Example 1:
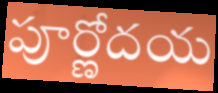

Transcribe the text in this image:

పూర్ణోదయ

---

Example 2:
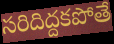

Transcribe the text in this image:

సరిదిద్దకపోతే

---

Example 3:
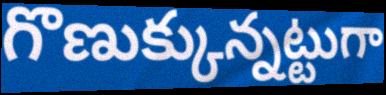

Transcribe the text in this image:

గొణుక్కున్నట్టుగా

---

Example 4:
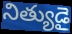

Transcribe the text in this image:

నిత్యుడై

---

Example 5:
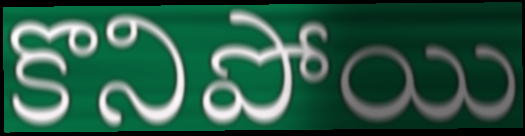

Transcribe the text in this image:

కొనిపోయి